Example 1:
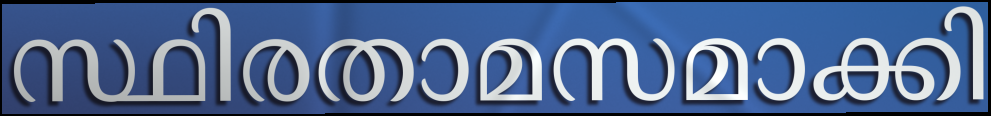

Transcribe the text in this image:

സ്ഥിരതാമസമാക്കി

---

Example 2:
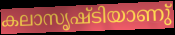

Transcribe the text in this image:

കലാസൃഷ്ടിയാണു്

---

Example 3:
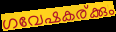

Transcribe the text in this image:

ഗവേഷകര്ക്കും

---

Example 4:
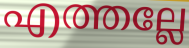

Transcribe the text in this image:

എത്തല്ലേ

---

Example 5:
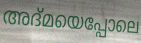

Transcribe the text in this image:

അദ്മയെപ്പോലെ